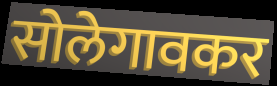
सोलेगावकर